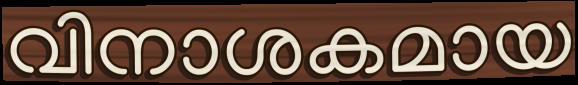
വിനാശകമായ